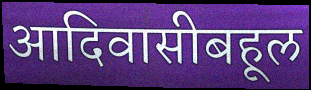
आदिवासीबहूल